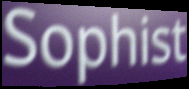
Sophist